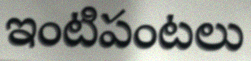
ఇంటిపంటలు